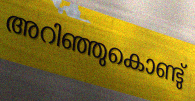
അറിഞ്ഞുകൊണ്ടു്